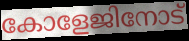
കോളേജിനോട്